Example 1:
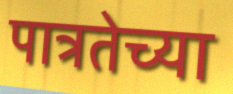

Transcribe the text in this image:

पात्रतेच्या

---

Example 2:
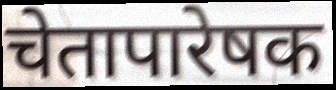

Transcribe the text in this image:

चेतापारेषक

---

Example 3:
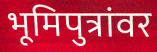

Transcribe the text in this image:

भूमिपुत्रांवर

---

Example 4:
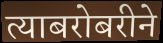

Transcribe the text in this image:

त्याबरोबरीने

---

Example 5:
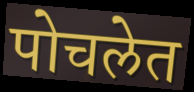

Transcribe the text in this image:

पोचलेत